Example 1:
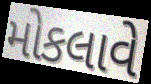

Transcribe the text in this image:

મોકલાવે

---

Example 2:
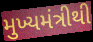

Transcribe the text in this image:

મુખ્યમંત્રીથી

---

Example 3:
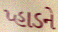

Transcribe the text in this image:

પ્હાડને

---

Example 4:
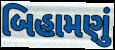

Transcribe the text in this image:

બિહામણું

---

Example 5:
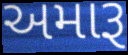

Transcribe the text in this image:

અમારૂ